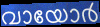
വായോർ